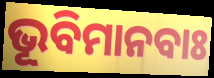
ଭୂବିମାନବାଃ